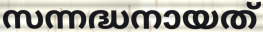
സന്നദ്ധനായത്